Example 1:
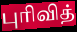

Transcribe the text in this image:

புரிவித்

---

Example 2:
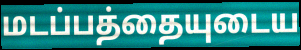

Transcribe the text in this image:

மடப்பத்தையுடைய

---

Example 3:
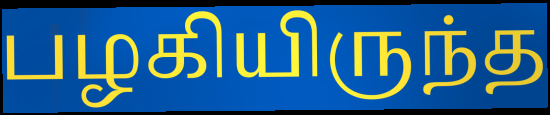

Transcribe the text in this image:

பழகியிருந்த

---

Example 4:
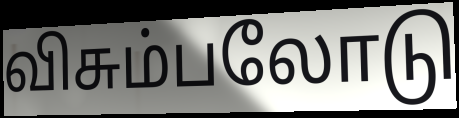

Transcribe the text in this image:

விசும்பலோடு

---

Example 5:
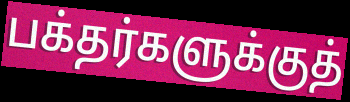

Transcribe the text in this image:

பக்தர்களுக்குத்